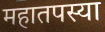
महातपस्या